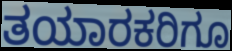
ತಯಾರಕರಿಗೂ